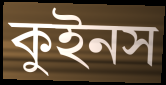
কুইনস